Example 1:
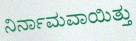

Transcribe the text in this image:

ನಿರ್ನಾಮವಾಯಿತ್ತು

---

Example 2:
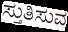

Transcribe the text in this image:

ಸ್ತುತಿಸುವ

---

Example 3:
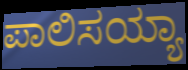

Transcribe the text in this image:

ಪಾಲಿಸಯ್ಯಾ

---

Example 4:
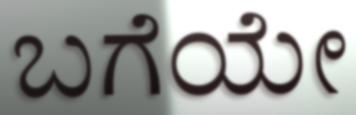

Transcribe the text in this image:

ಬಗೆಯೇ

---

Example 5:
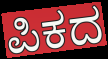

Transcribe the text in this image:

ಪಿಕದ